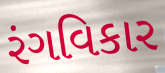
રંગવિકાર